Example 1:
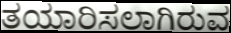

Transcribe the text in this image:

ತಯಾರಿಸಲಾಗಿರುವ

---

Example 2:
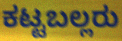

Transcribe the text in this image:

ಕಟ್ಟಬಲ್ಲರು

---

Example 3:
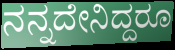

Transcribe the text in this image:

ನನ್ನದೇನಿದ್ದರೂ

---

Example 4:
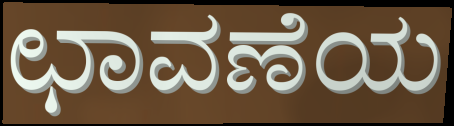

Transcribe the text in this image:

ಛಾವಣೆಯ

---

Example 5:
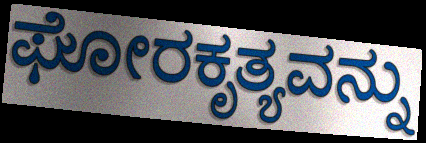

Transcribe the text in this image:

ಘೋರಕೃತ್ಯವನ್ನು